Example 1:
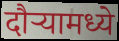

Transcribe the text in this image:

दौऱ्यामध्ये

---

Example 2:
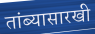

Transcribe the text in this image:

तांब्यासारखी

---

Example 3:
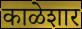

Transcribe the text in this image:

काळेशार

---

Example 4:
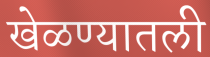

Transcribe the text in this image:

खेळण्यातली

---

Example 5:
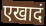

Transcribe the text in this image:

एखादं